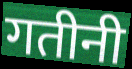
गतीनी